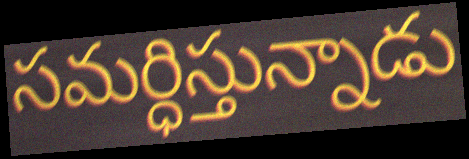
సమర్ధిస్తున్నాడు